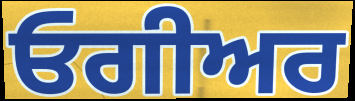
ਓਗੀਅਰ